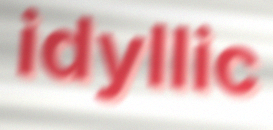
idyllic